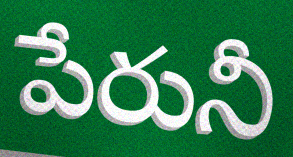
పేరునీ